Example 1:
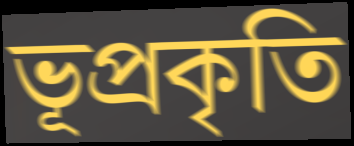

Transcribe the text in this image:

ভূপ্রকৃতি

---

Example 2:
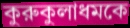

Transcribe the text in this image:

কুরুকুলাধমকে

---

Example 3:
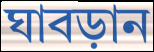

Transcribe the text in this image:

ঘাবড়ান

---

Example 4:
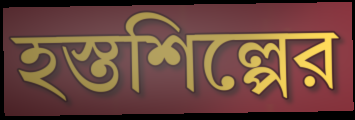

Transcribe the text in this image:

হস্তশিল্পের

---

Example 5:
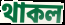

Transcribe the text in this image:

থাকল